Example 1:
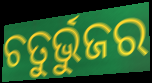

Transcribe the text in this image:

ଚତୁର୍ଭୁଜର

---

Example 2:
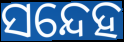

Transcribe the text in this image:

ସନ୍ଦେହ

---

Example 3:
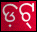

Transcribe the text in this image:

ଡ଼ଟ୍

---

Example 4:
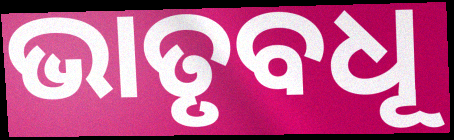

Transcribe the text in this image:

ଭାତୃବଧୂ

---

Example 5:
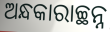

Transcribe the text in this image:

ଅନ୍ଧକାରାଚ୍ଛନ୍ନ